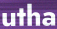
utha